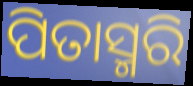
ପିତାସ୍ମରି